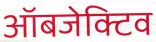
ऑबजेक्टिव